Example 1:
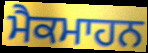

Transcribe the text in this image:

ਮੈਕਮਾਹਨ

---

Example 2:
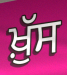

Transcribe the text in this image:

ਖ਼ੁੱਸ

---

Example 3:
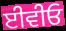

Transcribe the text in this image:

ਈਵੀਓ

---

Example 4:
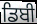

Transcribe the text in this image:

ਡਿਬੀ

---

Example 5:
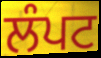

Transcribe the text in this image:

ਲੰਪਟ